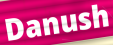
Danush